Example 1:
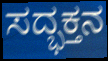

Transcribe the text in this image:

ಸದ್ಭಕ್ತನ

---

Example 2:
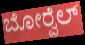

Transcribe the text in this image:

ಬೋರ್‍ವೆಲ್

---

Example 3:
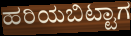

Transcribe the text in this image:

ಹರಿಯಬಿಟ್ಟಾಗ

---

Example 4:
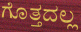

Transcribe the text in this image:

ಗೊತ್ತದಲ್ಲ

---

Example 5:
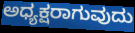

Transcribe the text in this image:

ಅಧ್ಯಕ್ಷರಾಗುವುದು